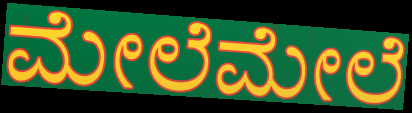
ಮೇಲೆಮೇಲೆ